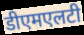
डीएमएलटी